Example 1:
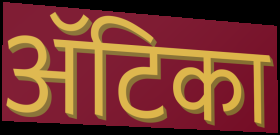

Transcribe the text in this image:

ॲटिका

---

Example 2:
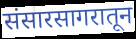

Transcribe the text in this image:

संसारसागरातून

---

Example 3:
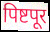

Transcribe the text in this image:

पिष्टपूर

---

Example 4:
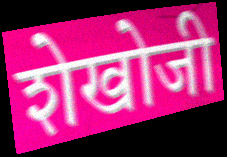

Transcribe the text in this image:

शेखोजी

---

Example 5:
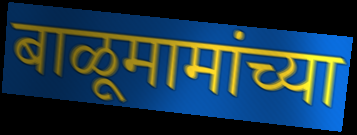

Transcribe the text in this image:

बाळूमामांच्या